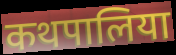
कथपालिया